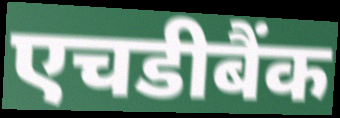
एचडीबैंक